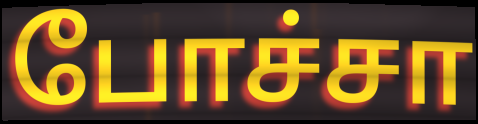
போச்சா